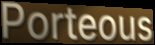
Porteous